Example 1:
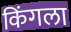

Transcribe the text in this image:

किंगला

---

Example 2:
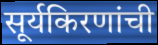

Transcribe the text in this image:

सूर्यकिरणांची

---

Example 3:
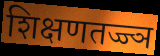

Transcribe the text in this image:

शिक्षणतज्ज्ञ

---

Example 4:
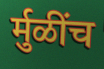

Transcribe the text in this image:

र्मुळींच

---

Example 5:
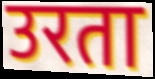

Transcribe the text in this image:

उरता